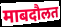
माबदौलत